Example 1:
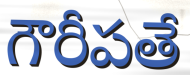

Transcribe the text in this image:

గౌరీపతే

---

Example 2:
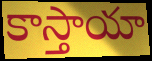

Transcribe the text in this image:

కాస్తాయా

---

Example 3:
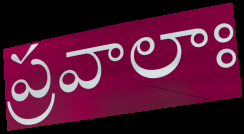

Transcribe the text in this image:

ప్రవాలాః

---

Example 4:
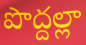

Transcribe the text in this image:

పొద్దల్లా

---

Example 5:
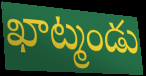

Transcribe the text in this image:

ఖాట్మండు